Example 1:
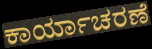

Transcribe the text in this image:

ಕಾರ್ಯಾಚರಣೆ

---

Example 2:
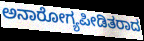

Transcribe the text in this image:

ಅನಾರೋಗ್ಯಪೀಡಿತರಾದ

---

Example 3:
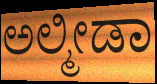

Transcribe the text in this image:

ಅಲ್ಮೀಡಾ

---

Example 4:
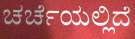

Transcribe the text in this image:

ಚರ್ಚೆಯಲ್ಲಿದೆ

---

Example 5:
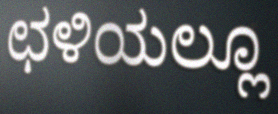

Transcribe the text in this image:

ಛಳಿಯಲ್ಲೂ